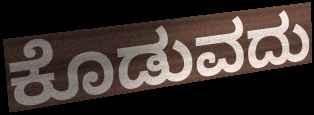
ಕೊಡುವದು